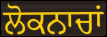
ਲੋਕਨਾਚਾਂ